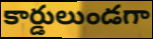
కార్డులుండగా